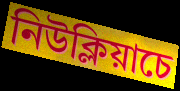
নিউক্লিয়াচে